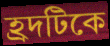
হ্রদটিকে